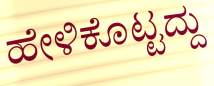
ಹೇಳಿಕೊಟ್ಟದ್ದು